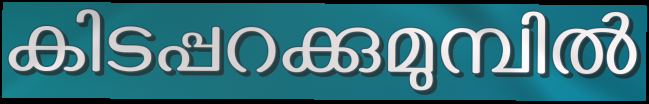
കിടപ്പറക്കുമുമ്പിൽ